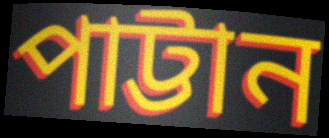
পাট্টান